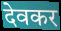
देवकर